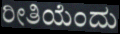
ರೀತಿಯೆಂದು